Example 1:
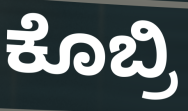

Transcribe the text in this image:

ಕೊಬ್ರಿ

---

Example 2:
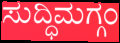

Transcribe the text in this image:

ಸುದ್ಧಿಮಗ್ಗಂ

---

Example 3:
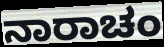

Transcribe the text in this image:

ನಾರಾಚಂ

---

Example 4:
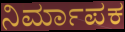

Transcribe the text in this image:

ನಿರ್ಮಾಪಕ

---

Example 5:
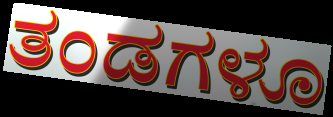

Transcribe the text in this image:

ತಂಡಗಳೂ